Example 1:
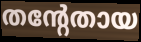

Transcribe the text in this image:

തന്റേതായ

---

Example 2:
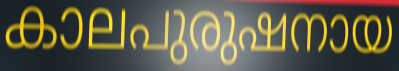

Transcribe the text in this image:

കാലപുരുഷനായ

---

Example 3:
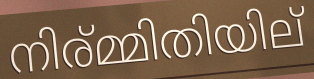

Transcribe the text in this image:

നിര്മ്മിതിയില്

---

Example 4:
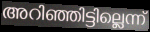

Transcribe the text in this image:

അറിഞ്ഞിട്ടില്ലെന്ന്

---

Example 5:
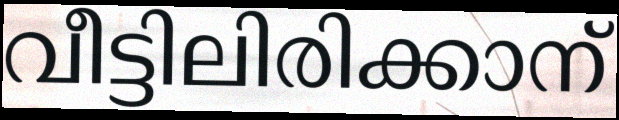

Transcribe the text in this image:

വീട്ടിലിരിക്കാന്